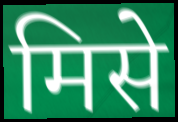
मिसे